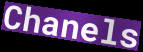
Chanels